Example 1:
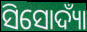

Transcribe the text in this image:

ସିସୋଦ୍ୟାଁ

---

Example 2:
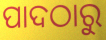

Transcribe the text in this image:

ପାଦଠାରୁ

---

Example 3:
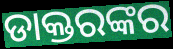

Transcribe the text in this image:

ଡାକ୍ତରଙ୍କର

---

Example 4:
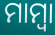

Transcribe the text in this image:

ମାମ୍ଵା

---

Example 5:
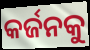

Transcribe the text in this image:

କର୍ଜନକୁ